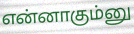
என்னாகும்னு